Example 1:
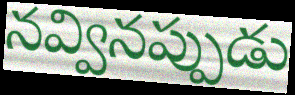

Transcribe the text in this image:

నవ్వినప్పుడు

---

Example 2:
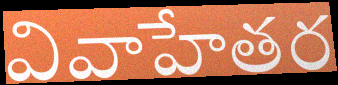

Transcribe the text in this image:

వివాహేతర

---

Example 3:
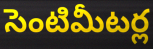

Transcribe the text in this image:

సెంటిమీటర్ల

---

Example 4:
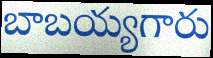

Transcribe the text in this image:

బాబయ్యగారు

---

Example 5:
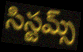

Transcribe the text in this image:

సిస్టమ్స్